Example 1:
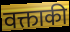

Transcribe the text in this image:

वक्ताकी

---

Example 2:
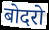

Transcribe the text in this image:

बोदरो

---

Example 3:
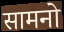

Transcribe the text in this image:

सामनो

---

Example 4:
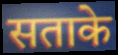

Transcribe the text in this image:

सताके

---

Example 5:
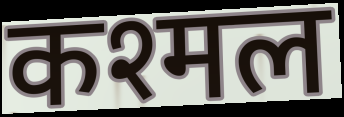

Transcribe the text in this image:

कश्मल